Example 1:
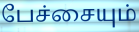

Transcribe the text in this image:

பேச்சையும்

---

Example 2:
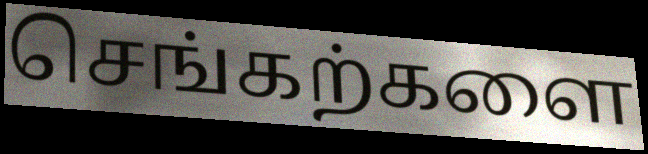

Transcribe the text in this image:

செங்கற்களை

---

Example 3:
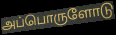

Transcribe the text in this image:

அப்பொருளோடு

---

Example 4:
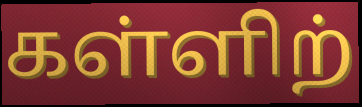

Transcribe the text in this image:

கள்ளிற்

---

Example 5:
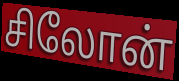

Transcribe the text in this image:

சிலோன்